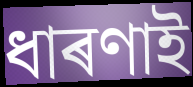
ধাৰণাই